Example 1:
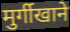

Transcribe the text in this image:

मुर्गीखाने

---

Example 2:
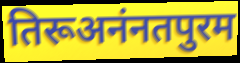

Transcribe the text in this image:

तिरूअनंनतपुरम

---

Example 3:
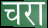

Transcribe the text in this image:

चरा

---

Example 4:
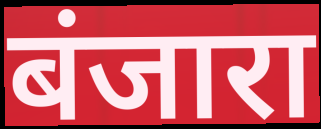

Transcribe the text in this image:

बंजारा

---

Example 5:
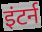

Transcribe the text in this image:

इंटर्न